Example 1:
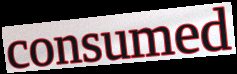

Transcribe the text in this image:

consumed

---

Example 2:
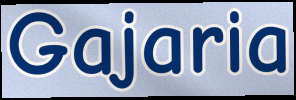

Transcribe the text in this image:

Gajaria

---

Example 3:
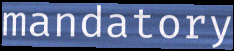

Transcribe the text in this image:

mandatory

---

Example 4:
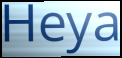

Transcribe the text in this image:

Heya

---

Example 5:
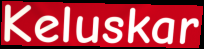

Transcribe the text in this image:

Keluskar